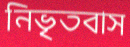
নিভৃতবাস